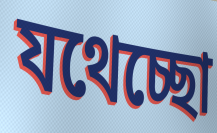
যথেচ্ছো